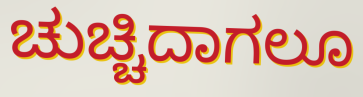
ಚುಚ್ಚಿದಾಗಲೂ